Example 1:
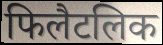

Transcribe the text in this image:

फिलैटलिक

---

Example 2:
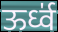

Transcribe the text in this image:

ऊर्ध्व॑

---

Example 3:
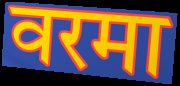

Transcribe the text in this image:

वरमा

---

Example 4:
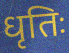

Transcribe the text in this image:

धृतिः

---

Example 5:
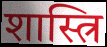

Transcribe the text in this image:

शास्त्रि